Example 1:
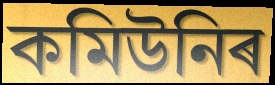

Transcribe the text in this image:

কমিউনিৰ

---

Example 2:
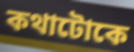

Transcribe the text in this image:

কথাটোকে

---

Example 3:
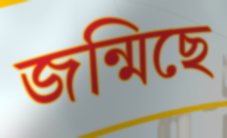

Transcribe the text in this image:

জন্মিছে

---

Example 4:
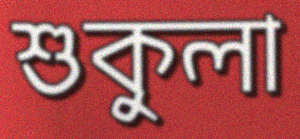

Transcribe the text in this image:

শুকুলা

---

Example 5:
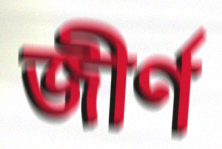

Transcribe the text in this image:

জীৰ্ণ